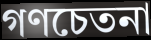
গণচেতনা